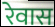
रेवास